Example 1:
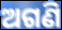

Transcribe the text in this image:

ଅଗଣି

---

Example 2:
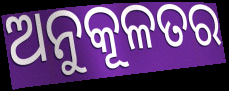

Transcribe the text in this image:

ଅନୁକୂଳତର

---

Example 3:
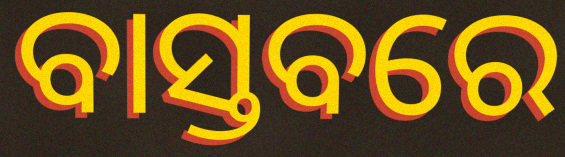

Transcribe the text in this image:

ବାସ୍ତବରେ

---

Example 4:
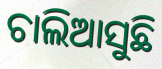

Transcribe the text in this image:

ଚାଲିଆସୁଛି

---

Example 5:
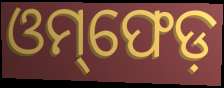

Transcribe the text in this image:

ଓମ୍‌ଫେଡ଼